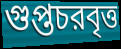
গুপ্তচরবৃত্ত